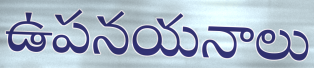
ఉపనయనాలు